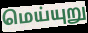
மெய்யுறு